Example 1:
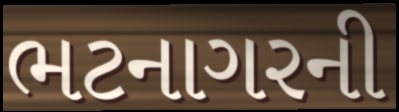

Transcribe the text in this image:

ભટનાગરની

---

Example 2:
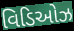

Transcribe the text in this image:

વિડિઓઝ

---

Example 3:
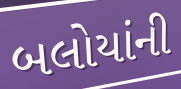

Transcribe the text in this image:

બલોયાંની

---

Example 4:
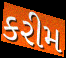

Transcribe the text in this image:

કરીમ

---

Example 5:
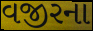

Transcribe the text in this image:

વજીરના